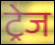
ट्रेज